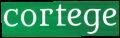
cortege